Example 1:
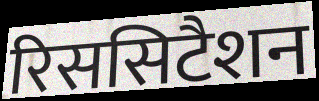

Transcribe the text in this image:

रिससिटैशन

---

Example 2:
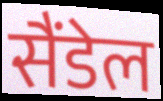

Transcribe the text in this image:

सैंडेल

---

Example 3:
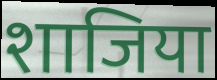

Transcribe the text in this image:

शाजिया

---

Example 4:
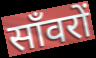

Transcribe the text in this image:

साँवरों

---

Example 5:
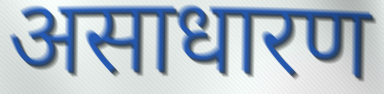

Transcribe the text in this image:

असाधारण